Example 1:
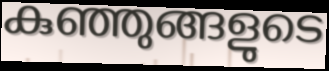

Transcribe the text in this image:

കുഞ്ഞുങ്ങളുടെ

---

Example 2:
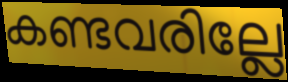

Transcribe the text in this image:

കണ്ടവരില്ലേ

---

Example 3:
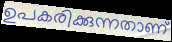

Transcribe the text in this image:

ഉപകരിക്കുന്നതാണ്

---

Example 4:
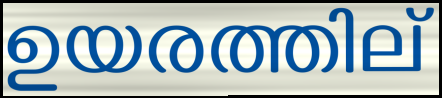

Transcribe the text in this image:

ഉയരത്തില്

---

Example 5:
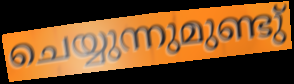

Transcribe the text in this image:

ചെയ്യുന്നുമുണ്ടു്